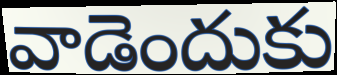
వాడెందుకు